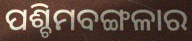
ପଶ୍ଚିମବଙ୍ଗଳାର